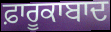
ਫ਼ਾਰੂਕਾਬਾਦ